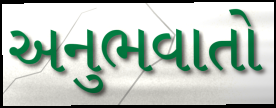
અનુભવાતો